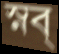
স্নব্